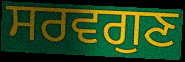
ਸਰਵਗੁਣ